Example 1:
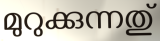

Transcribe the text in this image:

മുറുക്കുന്നതു്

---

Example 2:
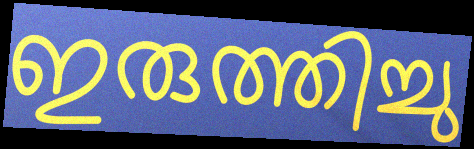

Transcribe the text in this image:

ഇരുത്തിച്ചു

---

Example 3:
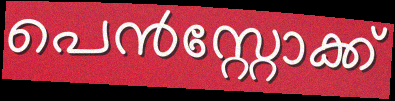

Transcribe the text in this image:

പെൻസ്റ്റോക്ക്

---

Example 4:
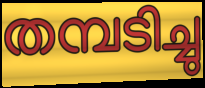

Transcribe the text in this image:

തമ്പടിച്ചു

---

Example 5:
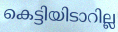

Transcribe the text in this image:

കെട്ടിയിടാറില്ല